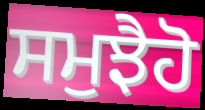
ਸਮੁਝੈਹੋ